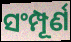
ସଂମ୍ପୂର୍ଣ